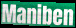
Maniben